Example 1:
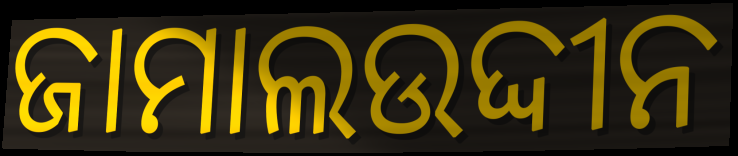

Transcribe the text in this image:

ଜାମାଲଉଦ୍ଦୀନ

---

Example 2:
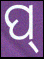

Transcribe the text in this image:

ପ୍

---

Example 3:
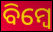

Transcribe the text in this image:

ବିମ୍ବେ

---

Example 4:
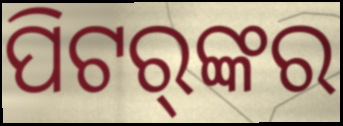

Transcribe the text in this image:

ପିଟର୍‌ଙ୍କର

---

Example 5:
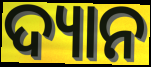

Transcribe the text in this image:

ଦ୍ୟାନ